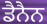
ਡੈਨੈਨ